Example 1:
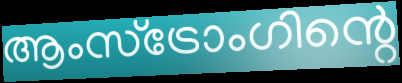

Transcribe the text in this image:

ആംസ്ട്രോംഗിന്റെ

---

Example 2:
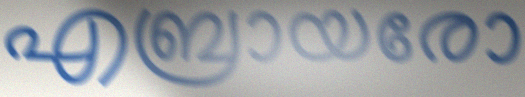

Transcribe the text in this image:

എബ്രായരോ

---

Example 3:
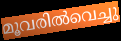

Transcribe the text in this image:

മൂവരിൽവെച്ചു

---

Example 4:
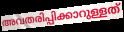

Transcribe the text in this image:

അവതരിപ്പിക്കാറുള്ളത്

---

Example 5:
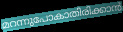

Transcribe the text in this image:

മറന്നുപോകാതിരിക്കാൻ